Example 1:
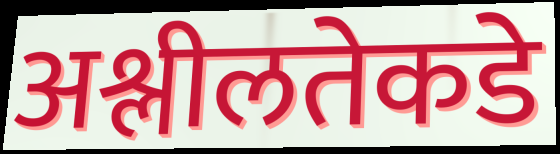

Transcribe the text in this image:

अश्लीलतेकडे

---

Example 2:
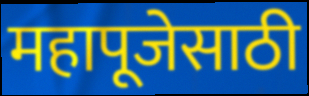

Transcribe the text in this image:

महापूजेसाठी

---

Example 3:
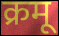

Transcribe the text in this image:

क्रमू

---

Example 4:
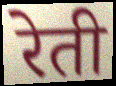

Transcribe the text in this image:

रेती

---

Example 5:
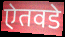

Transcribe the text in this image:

ऐतवडे